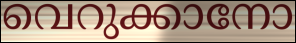
വെറുക്കാനോ